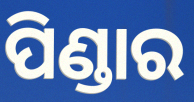
ପିଣ୍ଡାର